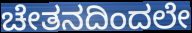
ಚೇತನದಿಂದಲೇ